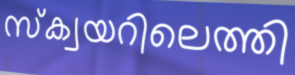
സ്ക്വയറിലെത്തി